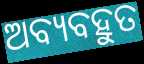
ଅବ୍ୟବହୁତ